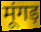
मूंगड़